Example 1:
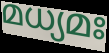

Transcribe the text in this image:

മധ്യമഃ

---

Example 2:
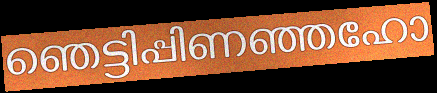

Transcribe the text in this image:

ഞെട്ടിപ്പിണഞ്ഞഹോ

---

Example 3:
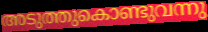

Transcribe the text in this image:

അടുത്തുകൊണ്ടുവന്നു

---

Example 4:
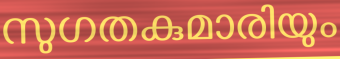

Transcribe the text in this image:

സുഗതകുമാരിയും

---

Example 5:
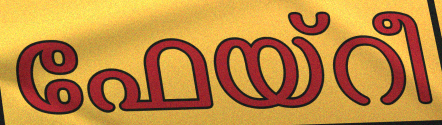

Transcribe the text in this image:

ഫേയ്റീ